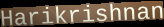
Harikrishnan